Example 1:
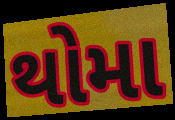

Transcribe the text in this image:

થોમા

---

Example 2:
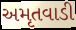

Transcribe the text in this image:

અમૃતવાડી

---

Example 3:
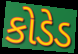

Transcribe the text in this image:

કોડેડ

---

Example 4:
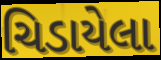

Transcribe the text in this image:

ચિડાયેલા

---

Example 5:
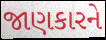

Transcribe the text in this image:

જાણકારને